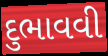
દુભાવવી